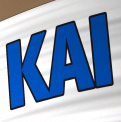
KAI